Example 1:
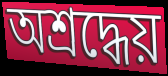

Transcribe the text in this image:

অশ্রদ্ধেয়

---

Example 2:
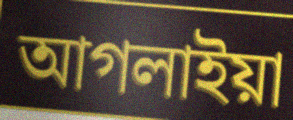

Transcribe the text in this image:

আগলাইয়া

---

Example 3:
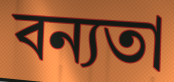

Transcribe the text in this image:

বন্যতা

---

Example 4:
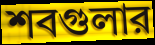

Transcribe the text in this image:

শবগুলার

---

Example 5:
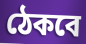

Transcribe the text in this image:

ঠেকবে